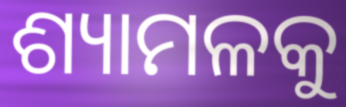
ଶ୍ୟାମଳକୁ